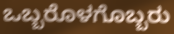
ಒಬ್ಬರೊಳಗೊಬ್ಬರು